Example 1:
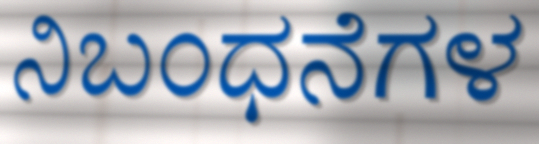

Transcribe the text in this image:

ನಿಬಂಧನೆಗಳ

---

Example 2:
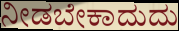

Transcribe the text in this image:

ನೀಡಬೇಕಾದುದು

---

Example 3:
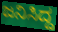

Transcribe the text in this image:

ಜನಿಸಿದ್ದ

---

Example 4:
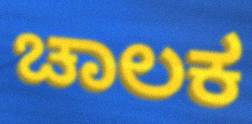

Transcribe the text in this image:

ಚಾಲಕ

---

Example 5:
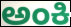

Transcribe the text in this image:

ಅಂಕಿ